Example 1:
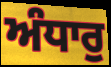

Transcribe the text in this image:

ਅੰਧਾਰੁ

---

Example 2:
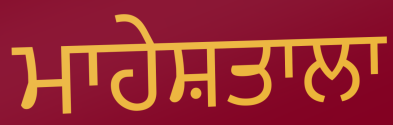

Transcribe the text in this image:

ਮਾਹੇਸ਼ਤਾਲਾ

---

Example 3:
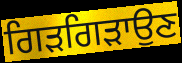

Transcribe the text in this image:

ਗਿੜਗਿੜਾਉਣ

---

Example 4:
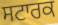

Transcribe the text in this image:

ਸਟਾਰਕ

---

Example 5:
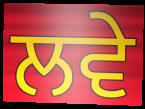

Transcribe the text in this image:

ਲਵੇ